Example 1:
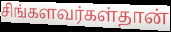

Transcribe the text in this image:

சிங்களவர்கள்தான்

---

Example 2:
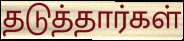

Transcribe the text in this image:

தடுத்தார்கள்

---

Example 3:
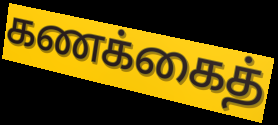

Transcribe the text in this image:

கணக்கைத்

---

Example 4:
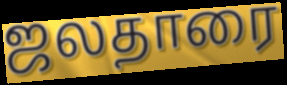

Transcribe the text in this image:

ஜலதாரை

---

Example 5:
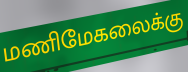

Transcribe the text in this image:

மணிமேகலைக்கு